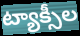
ట్యాక్సీల